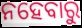
ନହେବାରୁ